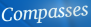
Compasses